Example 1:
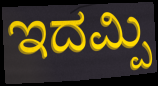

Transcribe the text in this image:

ಇದಮ್ಪಿ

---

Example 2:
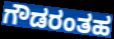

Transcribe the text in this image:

ಗೌಡರಂತಹ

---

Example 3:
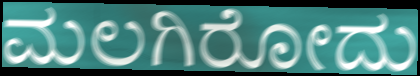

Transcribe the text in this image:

ಮಲಗಿರೋದು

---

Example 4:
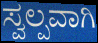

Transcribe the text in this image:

ಸ್ವಲ್ಪವಾಗಿ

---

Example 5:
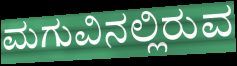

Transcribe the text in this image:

ಮಗುವಿನಲ್ಲಿರುವ